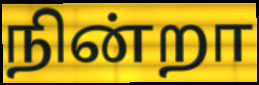
நின்றா